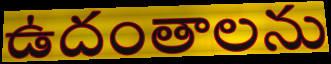
ఉదంతాలను